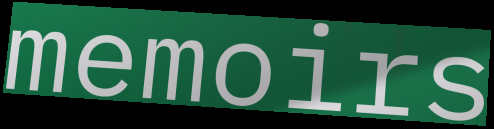
memoirs